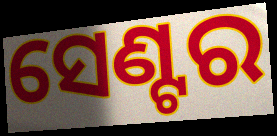
ସେଣ୍ଟର